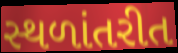
સ્થળાંતરીત